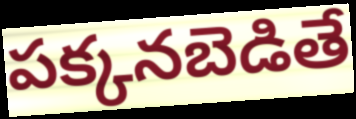
పక్కనబెడితే